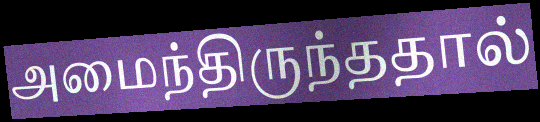
அமைந்திருந்ததால்